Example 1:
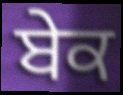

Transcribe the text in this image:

ਬੇਕ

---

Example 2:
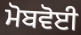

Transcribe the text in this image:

ਮੋਬਵੋਈ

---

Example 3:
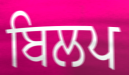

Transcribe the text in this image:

ਬਿਲਪ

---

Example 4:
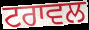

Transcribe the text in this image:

ਟਰਾਵਲ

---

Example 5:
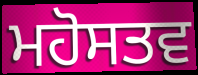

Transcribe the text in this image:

ਮਹੋਸਤਵ